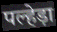
पल्हेड़ा